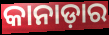
କାନାଡ଼ାର